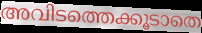
അവിടത്തെക്കൂടാതെ